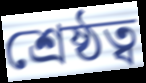
শ্ৰেষ্ঠত্ব